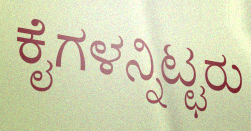
ಕೈಗಳನ್ನಿಟ್ಟರು